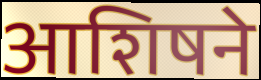
आशिषने